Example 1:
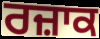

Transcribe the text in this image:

ਰਜ਼ਾਕ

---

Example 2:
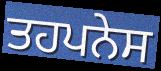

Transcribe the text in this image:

ਤਹਪਨੇਸ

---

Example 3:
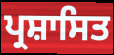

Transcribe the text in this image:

ਪ੍ਰਸ਼ਾਸਿਤ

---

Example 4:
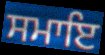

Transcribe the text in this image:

ਸਮਾਇ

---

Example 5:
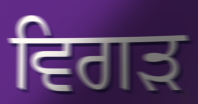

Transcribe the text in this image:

ਵਿਗੜ